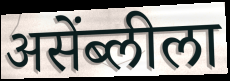
असेंब्लीला